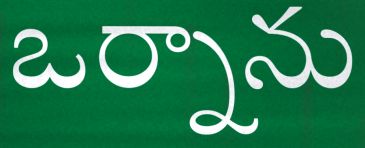
ఒర్నాను